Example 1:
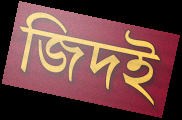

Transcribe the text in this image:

জিদই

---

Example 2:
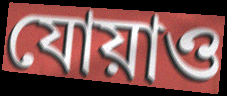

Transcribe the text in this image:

যোয়াও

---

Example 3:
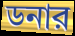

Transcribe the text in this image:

ডনার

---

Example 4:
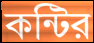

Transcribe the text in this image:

কন্টির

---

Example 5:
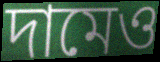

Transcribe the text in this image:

দামেও